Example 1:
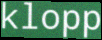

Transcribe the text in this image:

klopp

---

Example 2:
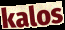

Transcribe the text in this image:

kalos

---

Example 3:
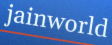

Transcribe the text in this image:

jainworld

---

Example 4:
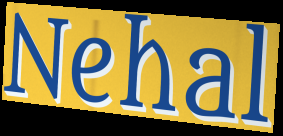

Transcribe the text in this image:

Nehal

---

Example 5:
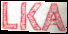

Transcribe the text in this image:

LKA